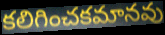
కలిగించకమానవు